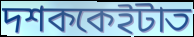
দশককেইটাত